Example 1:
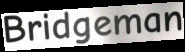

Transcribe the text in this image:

Bridgeman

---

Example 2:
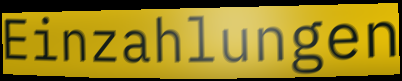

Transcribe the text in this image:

Einzahlungen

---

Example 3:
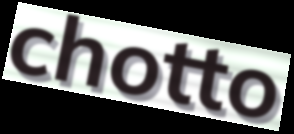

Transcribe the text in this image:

chotto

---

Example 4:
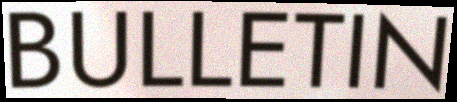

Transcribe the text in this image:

BULLETIN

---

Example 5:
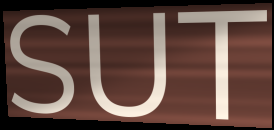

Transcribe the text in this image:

SUT